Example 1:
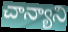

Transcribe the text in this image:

చాన్యాని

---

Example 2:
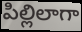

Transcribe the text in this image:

పిల్లిలాగా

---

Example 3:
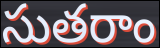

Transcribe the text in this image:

సుతరాం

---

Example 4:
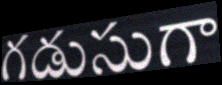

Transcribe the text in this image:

గడుసుగా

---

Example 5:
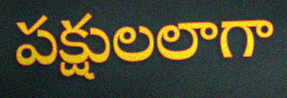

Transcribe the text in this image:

పక్షులలాగా